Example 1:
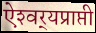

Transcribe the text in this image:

ऐश्वर्यप्राप्ती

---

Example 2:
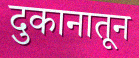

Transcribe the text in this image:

दुकानातून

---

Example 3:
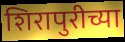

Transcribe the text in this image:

शिरापुरीच्या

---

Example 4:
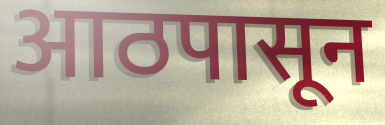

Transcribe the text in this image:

आठपासून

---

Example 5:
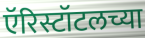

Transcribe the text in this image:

ऍरिस्टॉटलच्या